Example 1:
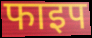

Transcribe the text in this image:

फाइप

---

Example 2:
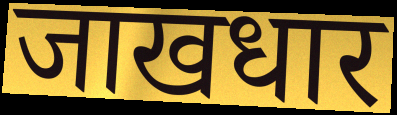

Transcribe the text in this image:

जाखधार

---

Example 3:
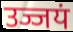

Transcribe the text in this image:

उज्जयं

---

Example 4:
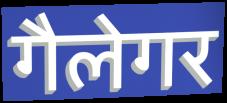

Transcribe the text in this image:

गैलेगर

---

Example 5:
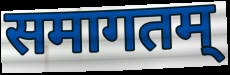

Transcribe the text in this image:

समागतम्